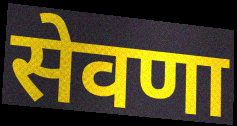
सेवणा